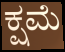
ಕ್ಷಮೆ